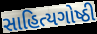
સાહિત્યગોષ્ઠી